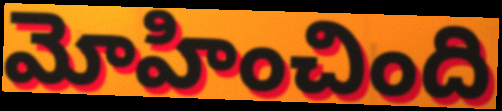
మోహించింది